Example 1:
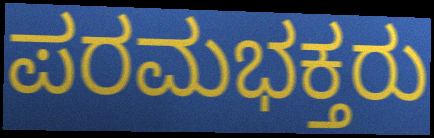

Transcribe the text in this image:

ಪರಮಭಕ್ತರು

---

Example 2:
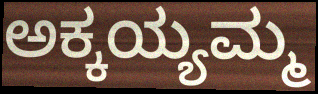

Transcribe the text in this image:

ಅಕ್ಕಯ್ಯಮ್ಮ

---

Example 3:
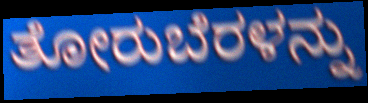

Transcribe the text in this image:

ತೋರುಬೆರಳನ್ನು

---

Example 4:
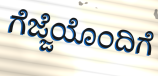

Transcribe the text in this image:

ಗೆಜ್ಜೆಯೊಂದಿಗೆ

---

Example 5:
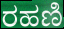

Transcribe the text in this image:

ರಹಣಿ